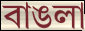
বাঙলা